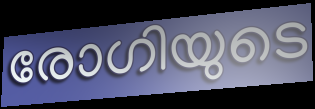
രോഗിയുടെ